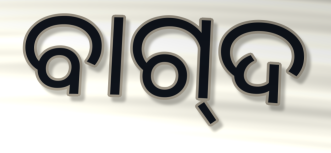
ବାଗ୍‌ଦ